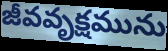
జీవవృక్షమును